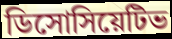
ডিসোসিয়েটিভ